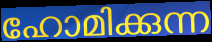
ഹോമിക്കുന്ന